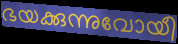
ഭയക്കുന്നുവോയീ